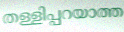
തള്ളിപ്പറയാത്ത